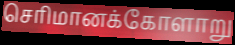
செரிமானக்கோளாறு